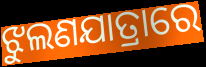
ଝୁଲଣଯାତ୍ରାରେ